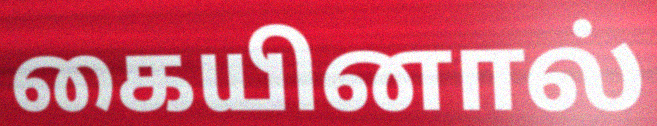
கையினால்